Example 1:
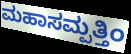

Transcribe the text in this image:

ಮಹಾಸಮ್ಪತ್ತಿಂ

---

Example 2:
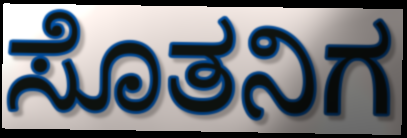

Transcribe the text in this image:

ಸೊತನಿಗ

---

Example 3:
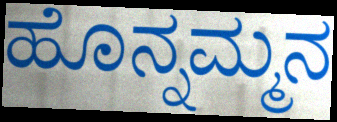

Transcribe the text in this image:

ಹೊನ್ನಮ್ಮನ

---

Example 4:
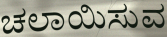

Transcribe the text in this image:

ಚಲಾಯಿಸುವ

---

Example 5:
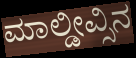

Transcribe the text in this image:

ಮಾಲ್ಡೀವ್ಸಿನ